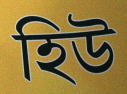
হিউ